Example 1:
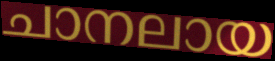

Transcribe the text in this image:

ചാനലായ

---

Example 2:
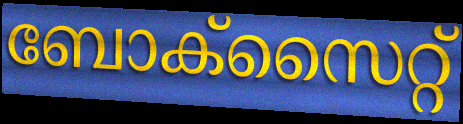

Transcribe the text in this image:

ബോക്സൈറ്റ്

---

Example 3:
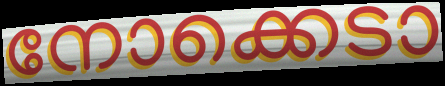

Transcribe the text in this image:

നോക്കെടാ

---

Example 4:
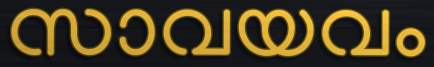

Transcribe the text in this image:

സാവയവം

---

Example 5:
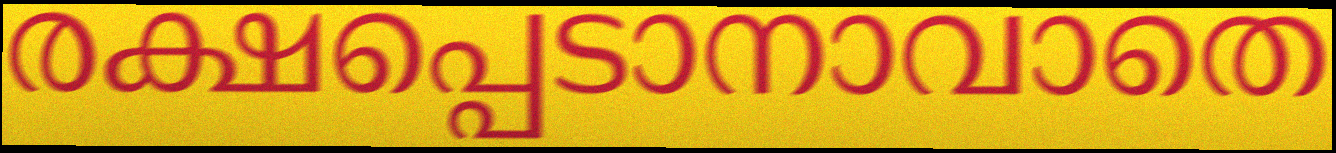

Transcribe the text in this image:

രക്ഷപ്പെടാനാവാതെ